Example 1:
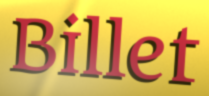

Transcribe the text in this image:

Billet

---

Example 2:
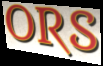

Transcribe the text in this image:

ORS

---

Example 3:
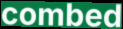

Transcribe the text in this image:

combed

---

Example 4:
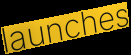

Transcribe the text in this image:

launches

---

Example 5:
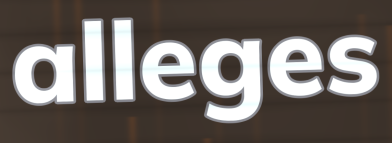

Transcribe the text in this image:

alleges